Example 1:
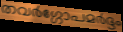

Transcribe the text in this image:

തവർഗ്ഗോപമർദ്ദം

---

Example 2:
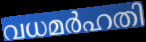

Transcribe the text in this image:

വധമർഹതി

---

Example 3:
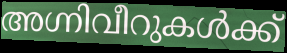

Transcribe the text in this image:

അഗ്നിവീറുകൾക്ക്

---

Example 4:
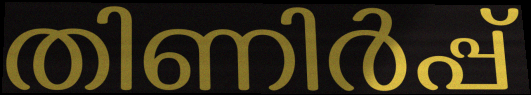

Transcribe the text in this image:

തിണിർപ്പ്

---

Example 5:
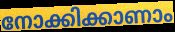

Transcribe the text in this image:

നോക്കിക്കാണാം